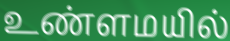
உண்ளமயில்